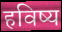
हविष्य